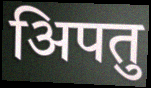
अिपतु